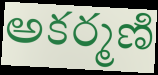
అకర్మణి